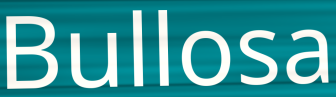
Bullosa